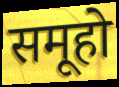
समूहो